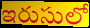
ఇరుసులో